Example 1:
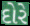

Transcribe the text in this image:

દોરે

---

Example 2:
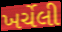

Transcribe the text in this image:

ખર્ચેલી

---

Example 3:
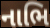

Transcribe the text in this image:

નાભિ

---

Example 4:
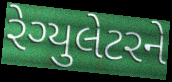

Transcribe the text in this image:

રેગ્યુલેટરને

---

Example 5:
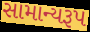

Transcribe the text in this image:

સામાન્યરૂપ